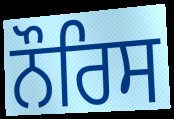
ਨੌਰਿਸ